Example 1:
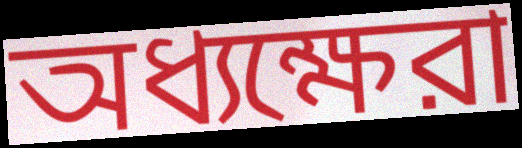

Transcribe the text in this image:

অধ্যক্ষেরা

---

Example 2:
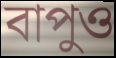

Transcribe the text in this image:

বাপুও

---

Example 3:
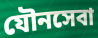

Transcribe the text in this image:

যৌনসেবা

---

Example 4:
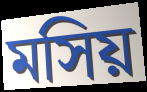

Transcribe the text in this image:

মসিয়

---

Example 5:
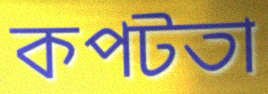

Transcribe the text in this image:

কপটতা